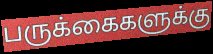
பருக்கைகளுக்கு